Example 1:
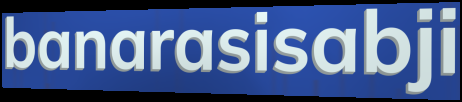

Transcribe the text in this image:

banarasisabji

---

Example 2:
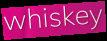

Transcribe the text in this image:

whiskey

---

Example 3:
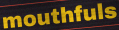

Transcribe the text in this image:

mouthfuls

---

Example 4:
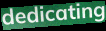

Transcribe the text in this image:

dedicating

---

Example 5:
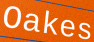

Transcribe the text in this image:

Oakes